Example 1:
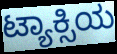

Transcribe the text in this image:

ಟ್ಯಾಕ್ಸಿಯ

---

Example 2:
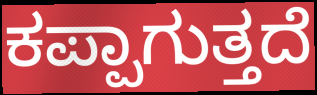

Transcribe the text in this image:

ಕಪ್ಪಾಗುತ್ತದೆ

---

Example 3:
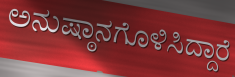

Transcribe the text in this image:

ಅನುಷ್ಠಾನಗೊಳಿಸಿದ್ದಾರೆ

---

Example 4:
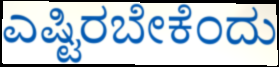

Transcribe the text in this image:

ಎಷ್ಟಿರಬೇಕೆಂದು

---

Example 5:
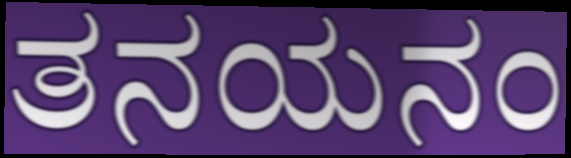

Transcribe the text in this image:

ತನಯನಂ